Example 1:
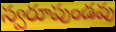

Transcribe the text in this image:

స్వరూపుండవు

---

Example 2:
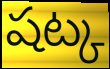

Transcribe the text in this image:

షట్క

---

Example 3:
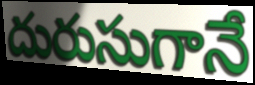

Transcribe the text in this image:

దురుసుగానే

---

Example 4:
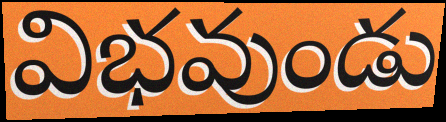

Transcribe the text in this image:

విభవుండు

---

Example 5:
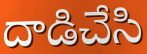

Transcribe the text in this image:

దాడిచేసి